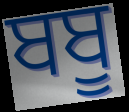
ਬਬੂ